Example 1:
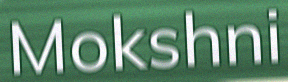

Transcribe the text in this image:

Mokshni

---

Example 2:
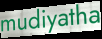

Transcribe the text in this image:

mudiyatha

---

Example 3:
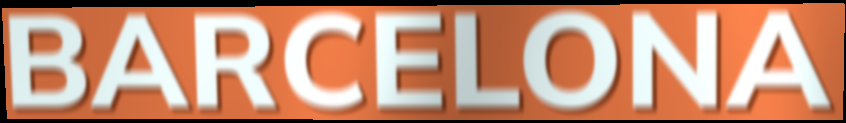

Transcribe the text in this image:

BARCELONA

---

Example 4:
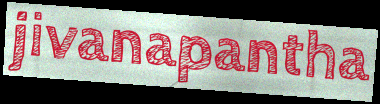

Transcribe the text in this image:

jivanapantha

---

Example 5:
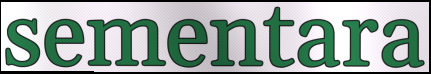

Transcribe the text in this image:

sementara